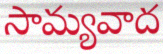
సామ్యవాద